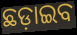
ଛଡ଼ାଇବ